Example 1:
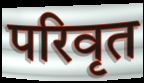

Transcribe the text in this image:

परिवृत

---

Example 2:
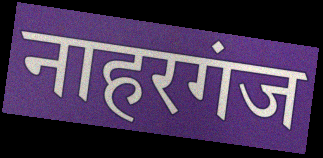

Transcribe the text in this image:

नाहरगंज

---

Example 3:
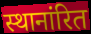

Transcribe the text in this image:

स्थानांरित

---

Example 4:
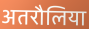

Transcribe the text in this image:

अतरौलिया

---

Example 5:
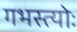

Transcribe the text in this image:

गभस्त्योः